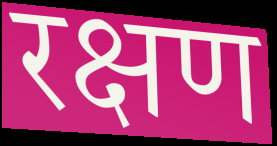
रक्षण